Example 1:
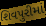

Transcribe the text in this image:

શિવપુરીમાં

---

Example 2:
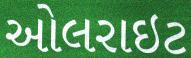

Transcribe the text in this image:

ઓલરાઇટ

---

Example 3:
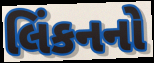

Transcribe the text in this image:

લિંકનનો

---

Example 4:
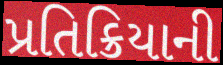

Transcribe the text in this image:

પ્રતિક્રિયાની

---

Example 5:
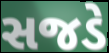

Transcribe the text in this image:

સજડે